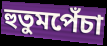
হুতুমপেঁচা